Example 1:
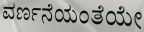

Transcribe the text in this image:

ವರ್ಣನೆಯಂತೆಯೇ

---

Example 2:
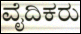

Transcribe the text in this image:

ವೈದಿಕರು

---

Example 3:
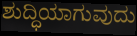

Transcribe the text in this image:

ಶುದ್ಧಿಯಾಗುವುದು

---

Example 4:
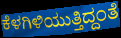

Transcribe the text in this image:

ಕೆಳಗಿಳಿಯುತ್ತಿದ್ದಂತೆ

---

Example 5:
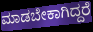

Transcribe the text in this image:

ಮಾಡಬೇಕಾಗಿದ್ದರೆ